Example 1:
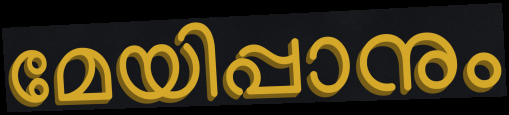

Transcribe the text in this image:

മേയിപ്പാനും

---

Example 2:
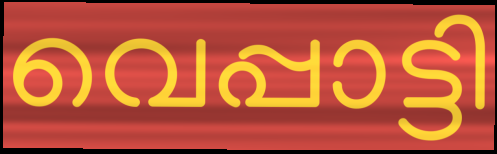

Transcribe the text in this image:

വെപ്പാട്ടി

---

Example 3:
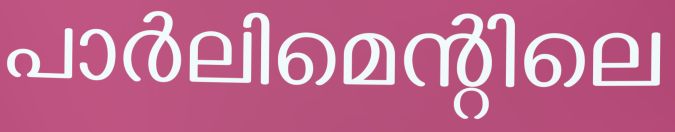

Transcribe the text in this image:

പാർലിമെന്റിലെ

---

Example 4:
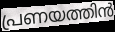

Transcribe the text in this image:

പ്രണയത്തിൻ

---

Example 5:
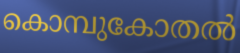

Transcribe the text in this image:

കൊമ്പുകോതൽ